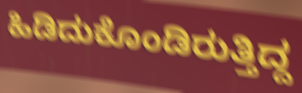
ಹಿಡಿದುಕೊಂಡಿರುತ್ತಿದ್ದ